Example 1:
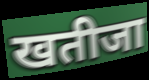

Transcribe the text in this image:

खतीजा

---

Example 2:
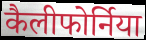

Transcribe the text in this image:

कैलीफोर्निया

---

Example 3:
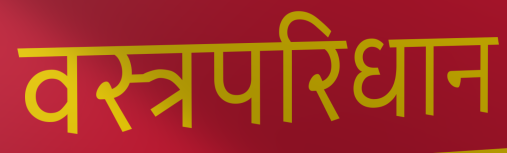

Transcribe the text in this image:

वस्त्रपरिधान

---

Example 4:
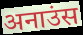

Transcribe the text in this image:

अनाउंस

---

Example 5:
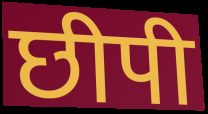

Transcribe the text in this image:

छीपी